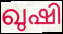
ഖുഷി